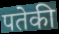
पतेकी